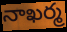
నాఖర్మ